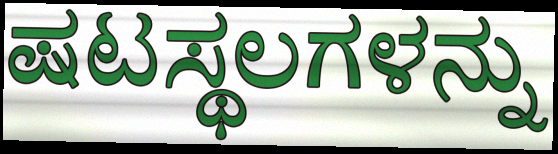
ಷಟಸ್ಥಲಗಳನ್ನು